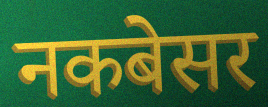
नकबेसर